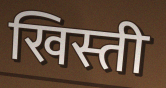
खिस्ती